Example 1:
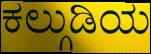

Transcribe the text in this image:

ಕಲ್ಗುಡಿಯ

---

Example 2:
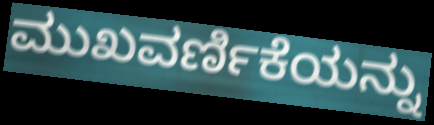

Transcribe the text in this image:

ಮುಖವರ್ಣಿಕೆಯನ್ನು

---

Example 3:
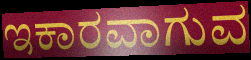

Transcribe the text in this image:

ಇಕಾರವಾಗುವ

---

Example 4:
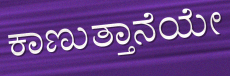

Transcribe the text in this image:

ಕಾಣುತ್ತಾನೆಯೇ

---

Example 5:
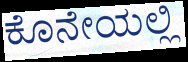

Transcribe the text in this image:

ಕೊನೇಯಲ್ಲಿ